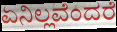
ಏನಿಲ್ಲವೆಂದರೆ